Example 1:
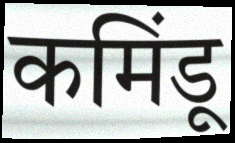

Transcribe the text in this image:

कमिंडू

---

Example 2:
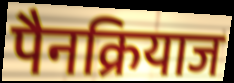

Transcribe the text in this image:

पैनक्रियाज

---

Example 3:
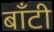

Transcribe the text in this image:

बाँटी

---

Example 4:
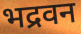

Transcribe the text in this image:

भद्रवन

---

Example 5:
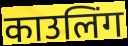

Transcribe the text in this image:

काउलिंग